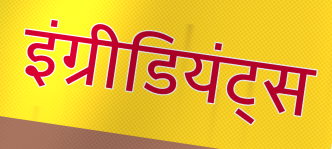
इंग्रीडियंट्स